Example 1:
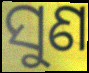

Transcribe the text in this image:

ସୁଣ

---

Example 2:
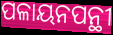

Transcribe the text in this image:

ପଳାୟନପନ୍ଥୀ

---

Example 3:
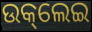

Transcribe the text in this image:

ଉକ୍‌ଲେଇ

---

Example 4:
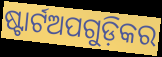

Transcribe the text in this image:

ଷ୍ଟାର୍ଟଅପଗୁଡ଼ିକର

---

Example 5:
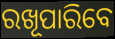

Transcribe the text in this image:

ରଖୂପାରିବେ